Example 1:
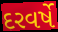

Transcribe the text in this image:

દરવર્ષે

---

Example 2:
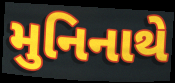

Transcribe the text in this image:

મુનિનાથે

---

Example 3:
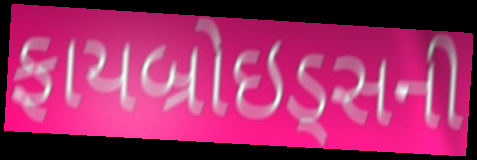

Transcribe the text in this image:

ફાયબ્રોઇડ્સની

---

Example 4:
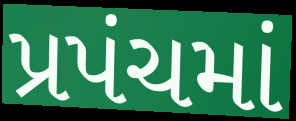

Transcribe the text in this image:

પ્રપંચમાં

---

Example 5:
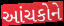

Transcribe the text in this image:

આંચકોને